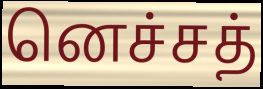
னெச்சத்